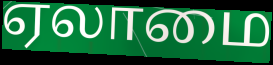
ஏலாமை